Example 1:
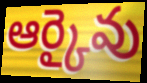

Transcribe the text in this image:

ఆర్కైవు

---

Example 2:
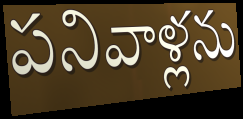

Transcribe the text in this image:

పనివాళ్లను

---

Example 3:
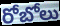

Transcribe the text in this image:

రోబోలు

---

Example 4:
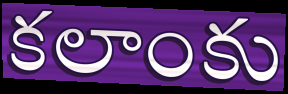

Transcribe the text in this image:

కలాంకు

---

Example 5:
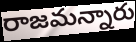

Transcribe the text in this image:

రాజమన్నారు